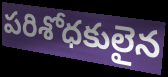
పరిశోధకులైన